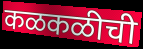
कळकळीची